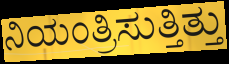
ನಿಯಂತ್ರಿಸುತ್ತಿತ್ತು